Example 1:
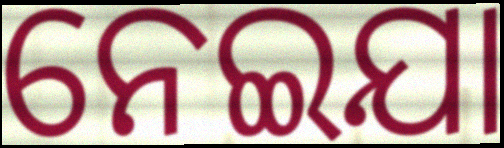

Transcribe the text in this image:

ନେଇଯା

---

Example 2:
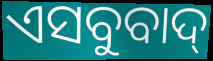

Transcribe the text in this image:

ଏସବୁବାଦ୍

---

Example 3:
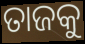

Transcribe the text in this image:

ତାଜକୁ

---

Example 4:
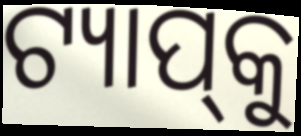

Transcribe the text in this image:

ଟ୍ୟାପ୍‌କୁ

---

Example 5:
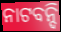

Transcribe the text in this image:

ନାଟବନ୍ଦି